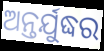
ଅନ୍ତର୍ଯୁଦ୍ଧର